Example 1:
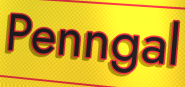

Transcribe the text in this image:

Penngal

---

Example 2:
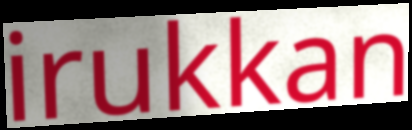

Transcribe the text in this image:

irukkan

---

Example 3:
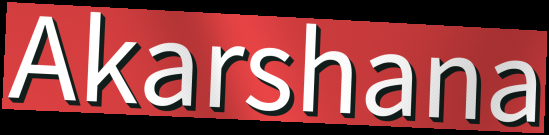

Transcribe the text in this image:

Akarshana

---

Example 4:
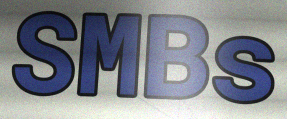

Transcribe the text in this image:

SMBs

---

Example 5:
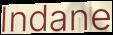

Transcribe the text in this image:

Indane